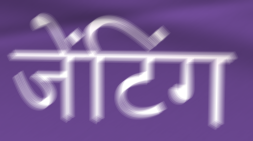
जेंटिंग